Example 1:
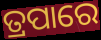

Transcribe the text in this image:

ତ୍ରପାରେ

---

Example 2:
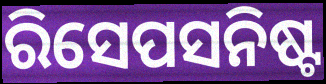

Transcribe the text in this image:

ରିସେପସନିଷ୍ଟ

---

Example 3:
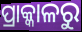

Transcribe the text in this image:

ପ୍ରାକ୍କାଳରୁ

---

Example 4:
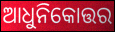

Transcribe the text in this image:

ଆଧୁନିକୋତ୍ତର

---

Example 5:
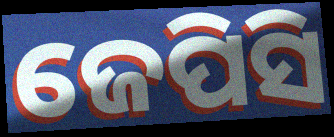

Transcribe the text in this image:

ଜେପିସି